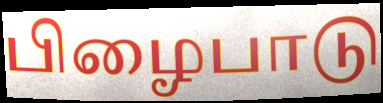
பிழைபாடு